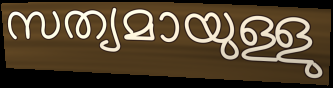
സത്യമായുള്ളു